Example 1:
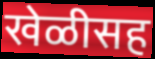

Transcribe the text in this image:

खेळीसह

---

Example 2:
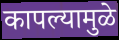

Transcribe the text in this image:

कापल्यामुळे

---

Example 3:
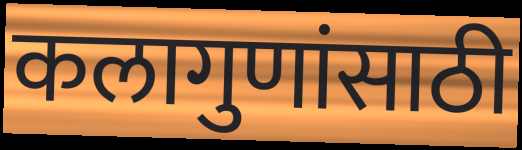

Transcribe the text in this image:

कलागुणांसाठी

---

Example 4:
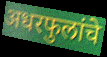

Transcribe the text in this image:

अधरफुलांचे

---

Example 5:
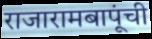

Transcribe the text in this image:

राजारामबापूंची